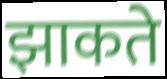
झाकते